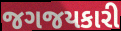
જગજયકારી